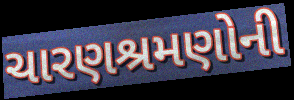
ચારણશ્રમણોની